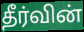
தீர்வின்